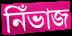
নিঁভাজ